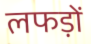
लफड़ों